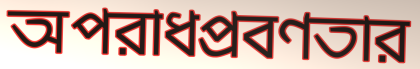
অপরাধপ্রবণতার